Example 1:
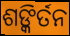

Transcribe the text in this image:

ଶଙ୍କିର୍ତନ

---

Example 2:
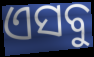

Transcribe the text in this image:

ଏସବୁ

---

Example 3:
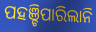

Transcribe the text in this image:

ପହଞ୍ଚିପାରିଲାନି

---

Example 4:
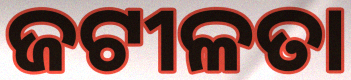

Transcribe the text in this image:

ଜଟୀଳତା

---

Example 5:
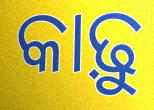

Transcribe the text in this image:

କାଢ଼ୁ